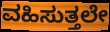
ವಹಿಸುತ್ತಲೇ